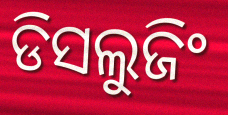
ଡିସଲୁଜିଂ